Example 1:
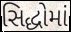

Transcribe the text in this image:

સિદ્ધોમાં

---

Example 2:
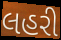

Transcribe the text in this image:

લહરી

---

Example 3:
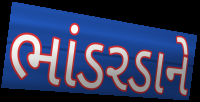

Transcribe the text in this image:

ભાંડરડાને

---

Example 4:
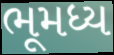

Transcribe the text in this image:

ભૂમધ્ય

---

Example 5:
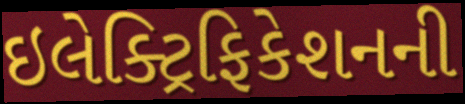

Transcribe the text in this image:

ઇલેક્ટ્રિફિકેશનની